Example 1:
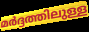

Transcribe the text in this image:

മർദ്ദത്തിലുള്ള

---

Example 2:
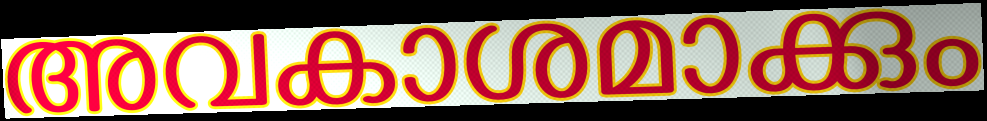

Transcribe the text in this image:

അവകാശമാക്കും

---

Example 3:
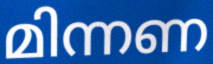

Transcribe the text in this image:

മിന്നണ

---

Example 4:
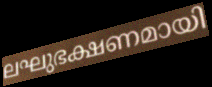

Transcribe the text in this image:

ലഘുഭക്ഷണമായി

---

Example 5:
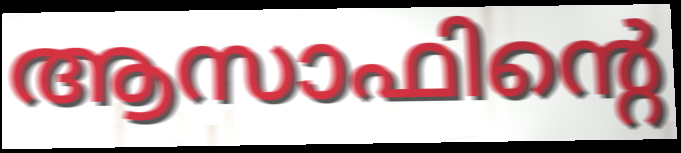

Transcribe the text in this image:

ആസാഫിന്റെ